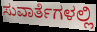
ಸುವಾರ್ತೆಗಳಲ್ಲಿ